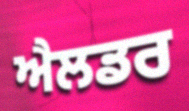
ਐਲਡਰ